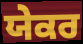
ਯੇਕਰ